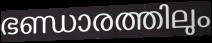
ഭണ്ഡാരത്തിലും